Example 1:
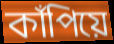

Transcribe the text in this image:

কাঁপিয়ে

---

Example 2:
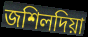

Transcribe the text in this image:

জশিলদিয়া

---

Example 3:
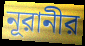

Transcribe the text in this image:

নূরানীর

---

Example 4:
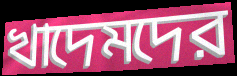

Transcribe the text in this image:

খাদেমদের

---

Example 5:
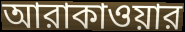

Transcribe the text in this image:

আরাকাওয়ার